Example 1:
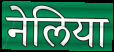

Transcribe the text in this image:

नेलिया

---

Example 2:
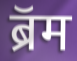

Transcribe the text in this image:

ब्रॅम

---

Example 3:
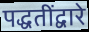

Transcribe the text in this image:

पद्धतींद्वारे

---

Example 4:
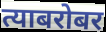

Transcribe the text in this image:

त्याबरोबर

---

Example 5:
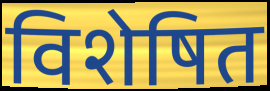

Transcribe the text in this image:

विशेषित